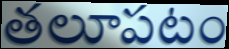
తలూపటం